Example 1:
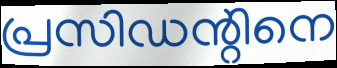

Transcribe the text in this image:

പ്രസിഡന്റിനെ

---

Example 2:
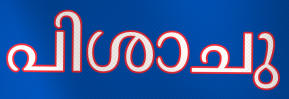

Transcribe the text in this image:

പിശാചു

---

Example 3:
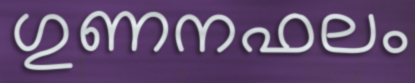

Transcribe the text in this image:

ഗുണനഫലം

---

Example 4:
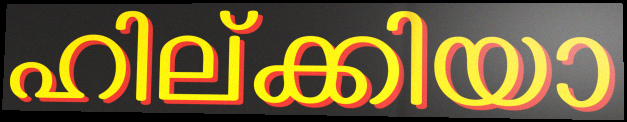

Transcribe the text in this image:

ഹില്ക്കിയാ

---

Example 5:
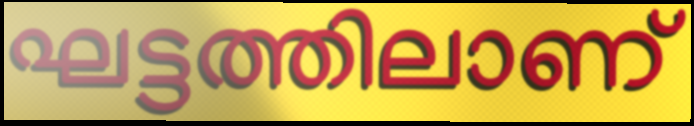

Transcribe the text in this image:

ഘട്ടത്തിലാണ്